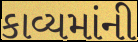
કાવ્યમાંની